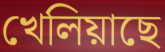
খেলিয়াছে